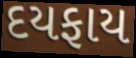
દયફાય